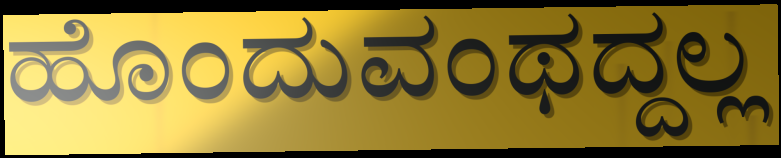
ಹೊಂದುವಂಥದ್ದಲ್ಲ